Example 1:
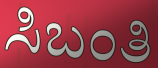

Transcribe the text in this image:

ಸಿಬಂತಿ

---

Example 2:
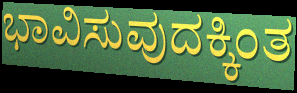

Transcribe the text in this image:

ಭಾವಿಸುವುದಕ್ಕಿಂತ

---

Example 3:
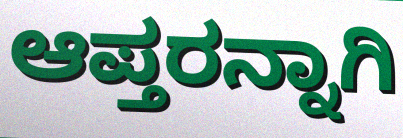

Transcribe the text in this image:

ಆಪ್ತರನ್ನಾಗಿ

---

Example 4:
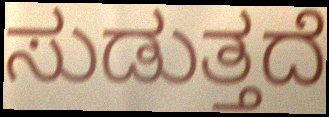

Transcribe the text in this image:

ಸುಡುತ್ತದೆ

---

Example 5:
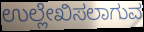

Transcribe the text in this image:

ಉಲ್ಲೇಖಿಸಲಾಗುವ